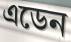
এডেন